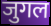
जुगल